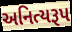
અનિત્યરૂપ